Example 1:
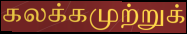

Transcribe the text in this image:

கலக்கமுற்றுக்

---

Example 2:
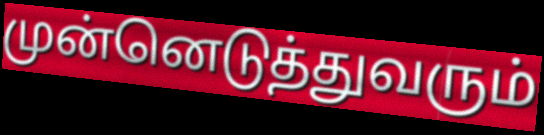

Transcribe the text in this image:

முன்னெடுத்துவரும்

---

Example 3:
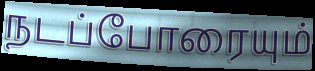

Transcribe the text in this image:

நடப்போரையும்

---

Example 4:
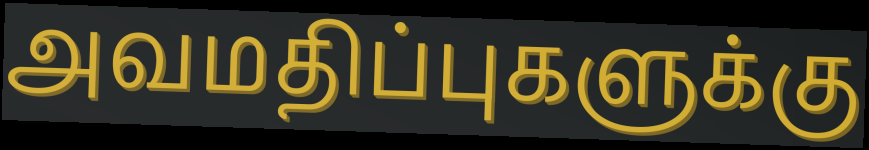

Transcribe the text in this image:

அவமதிப்புகளுக்கு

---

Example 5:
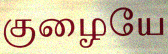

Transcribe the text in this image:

குழையே